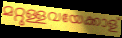
മറ്റുള്ളവയേക്കാള്